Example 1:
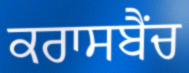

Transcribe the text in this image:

ਕਰਾਸਬੈਂਚ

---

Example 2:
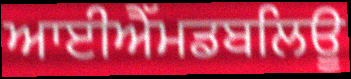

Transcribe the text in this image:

ਆਈਐੱਮਡਬਲਿਊ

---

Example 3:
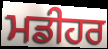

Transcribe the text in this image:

ਮਡੀਹਰ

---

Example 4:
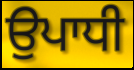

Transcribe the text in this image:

ਉਪਾਧੀ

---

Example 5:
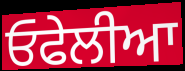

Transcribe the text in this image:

ਓਫੇਲੀਆ